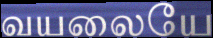
வயலையே